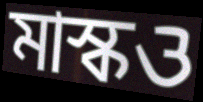
মাস্কও